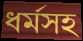
ধর্মসহ